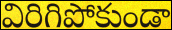
విరిగిపోకుండా